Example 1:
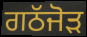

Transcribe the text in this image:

ਗਠੱਜੋੜ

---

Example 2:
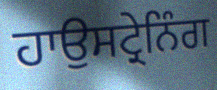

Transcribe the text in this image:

ਹਾਉਸਟ੍ਰੇਨਿੰਗ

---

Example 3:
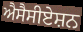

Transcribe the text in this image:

ਐਸੈਸੀਏਸ਼ਨ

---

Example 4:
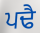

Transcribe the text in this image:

ਪਢੈ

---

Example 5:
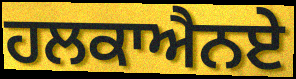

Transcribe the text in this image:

ਹਲਕਾਐਨਏ